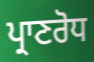
ਪ੍ਰਾਣਰੋਧ